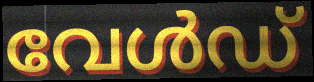
വേൾഡ്